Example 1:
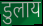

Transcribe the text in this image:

डुलाय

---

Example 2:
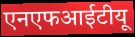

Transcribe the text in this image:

एनएफआईटीयू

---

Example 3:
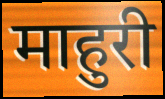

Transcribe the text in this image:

माहुरी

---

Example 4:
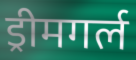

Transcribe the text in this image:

ड्रीमगर्ल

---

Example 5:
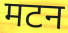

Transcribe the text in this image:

मटन